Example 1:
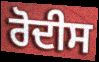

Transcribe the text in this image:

ਰੋਦੀਸ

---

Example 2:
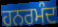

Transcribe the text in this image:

ਹਨਰਮੰਦ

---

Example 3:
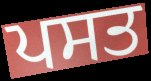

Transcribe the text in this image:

ਪਸਤ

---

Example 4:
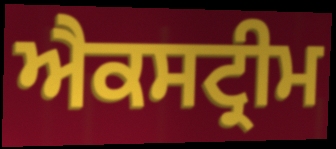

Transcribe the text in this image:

ਐਕਸਟ੍ਰੀਮ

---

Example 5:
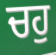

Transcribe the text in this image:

ਚਹੁ